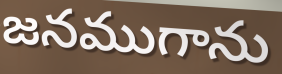
జనముగాను